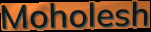
Moholesh